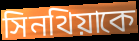
সিনথিয়াকে